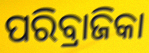
ପରିବ୍ରାଜିକା